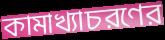
কামাখ্যাচরণের